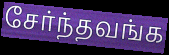
சேர்ந்தவங்க